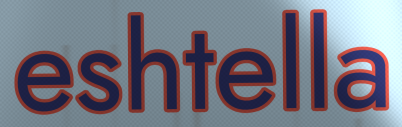
eshtella